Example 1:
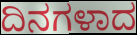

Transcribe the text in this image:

ದಿನಗಳಾದ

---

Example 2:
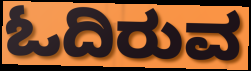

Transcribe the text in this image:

ಓದಿರುವ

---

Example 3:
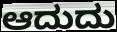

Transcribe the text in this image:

ಆದುದು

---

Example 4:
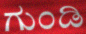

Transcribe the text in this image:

ಗುಂಡಿ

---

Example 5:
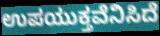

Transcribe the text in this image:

ಉಪಯುಕ್ತವೆನಿಸಿದೆ